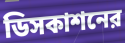
ডিসকাশনের